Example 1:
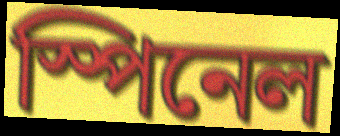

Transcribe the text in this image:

স্পিনেল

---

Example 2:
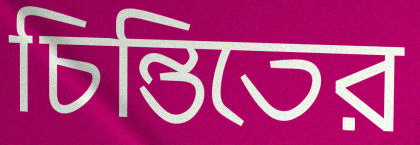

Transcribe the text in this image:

চিন্তিতের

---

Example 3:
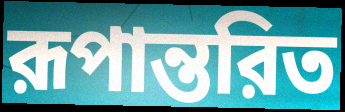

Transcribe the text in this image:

রূপান্তরিত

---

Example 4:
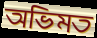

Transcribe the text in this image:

অভিমত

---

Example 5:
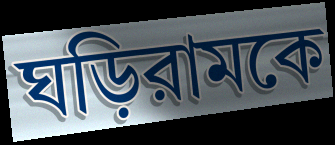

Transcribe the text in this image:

ঘড়িরামকে